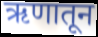
ऋणातून